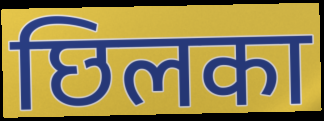
छिलका